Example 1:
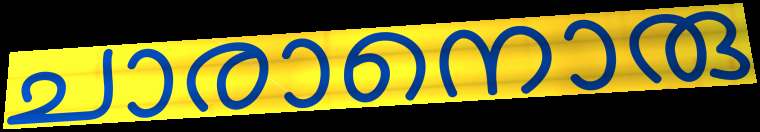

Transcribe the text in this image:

ചാരാനൊരു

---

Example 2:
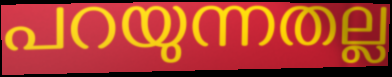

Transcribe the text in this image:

പറയുന്നതല്ല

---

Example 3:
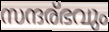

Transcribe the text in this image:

സന്ദര്ഭവും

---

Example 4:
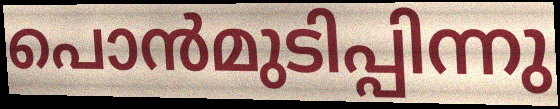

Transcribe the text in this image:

പൊൻമുടിപ്പിന്നു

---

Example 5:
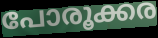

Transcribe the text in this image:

പോരൂക്കര